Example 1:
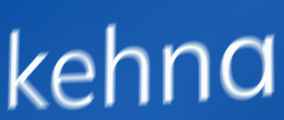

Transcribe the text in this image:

kehna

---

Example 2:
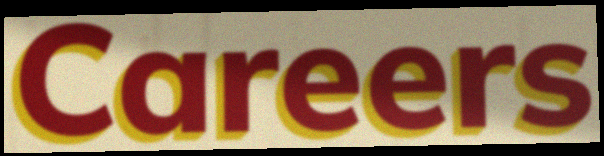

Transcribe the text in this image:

Careers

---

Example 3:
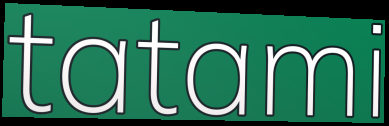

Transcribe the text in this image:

tatami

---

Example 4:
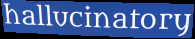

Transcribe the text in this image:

hallucinatory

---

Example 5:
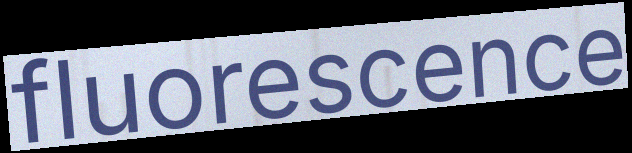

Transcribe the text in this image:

fluorescence